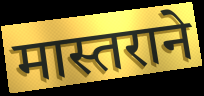
मास्तराने